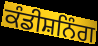
ਕੰਡੀਸ਼ਨਿੰਗ